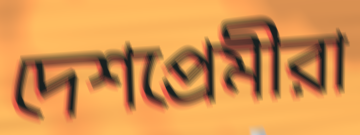
দেশপ্রেমীরা